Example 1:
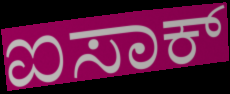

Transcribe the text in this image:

ಐಸಾಕ್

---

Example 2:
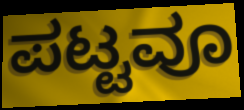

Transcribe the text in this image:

ಪಟ್ಟವೂ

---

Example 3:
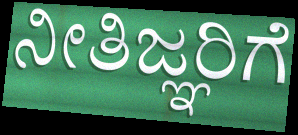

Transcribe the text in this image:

ನೀತಿಜ್ಞರಿಗೆ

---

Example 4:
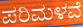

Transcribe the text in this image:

ಪರಿಮಳವೆ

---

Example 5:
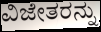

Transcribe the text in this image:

ವಿಜೇತರನ್ನು